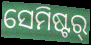
ସେମିଷ୍ଟର୍